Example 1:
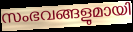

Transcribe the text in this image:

സംഭവങ്ങളുമായി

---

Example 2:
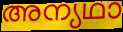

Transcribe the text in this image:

അന്യഥാ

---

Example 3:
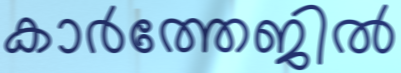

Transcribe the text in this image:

കാർത്തേജിൽ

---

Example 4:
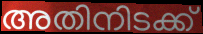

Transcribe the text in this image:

അതിനിടക്ക്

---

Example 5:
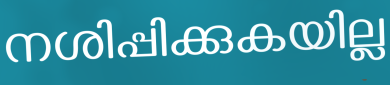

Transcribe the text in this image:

നശിപ്പിക്കുകയില്ല